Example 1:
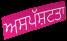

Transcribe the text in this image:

ਅਸਪੱਸ਼ਟਤਾ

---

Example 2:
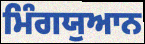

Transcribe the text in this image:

ਮਿੰਗਯੁਆਨ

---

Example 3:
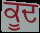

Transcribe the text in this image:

ਕੂਦ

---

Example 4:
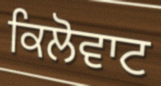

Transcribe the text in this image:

ਕਿਲੋਵਾਟ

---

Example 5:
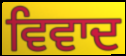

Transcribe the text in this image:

ਵਿਵਾਦ